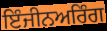
ਇੰਜੀਨਅਰਿੰਗ